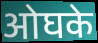
ओघके